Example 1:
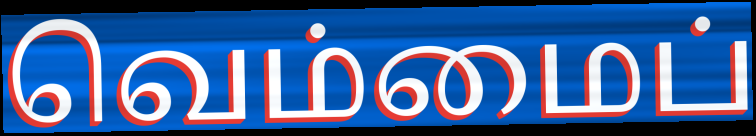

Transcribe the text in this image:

வெம்மைப்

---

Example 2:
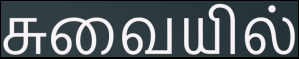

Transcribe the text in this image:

சுவையில்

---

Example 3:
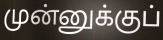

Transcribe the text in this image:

முன்னுக்குப்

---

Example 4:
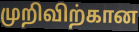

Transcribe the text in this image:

முறிவிற்கான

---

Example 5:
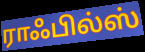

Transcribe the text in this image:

ராஃபில்ஸ்